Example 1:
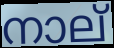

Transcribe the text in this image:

നാല്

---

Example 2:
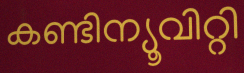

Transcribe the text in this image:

കണ്ടിന്യൂവിറ്റി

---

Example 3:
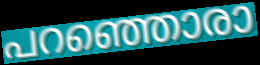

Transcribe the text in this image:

പറഞ്ഞൊരാ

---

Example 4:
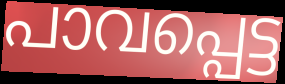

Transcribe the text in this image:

പാവപ്പെട്ട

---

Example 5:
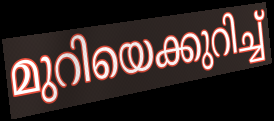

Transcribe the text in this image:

മുറിയെക്കുറിച്ച്